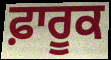
ਫ਼ਾਰੂਕ